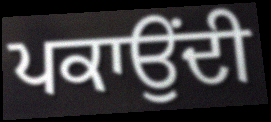
ਪਕਾਉਂਦੀ